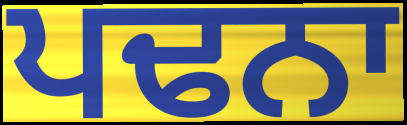
ਪਢਨਾ